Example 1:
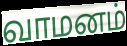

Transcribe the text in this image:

வாமனம்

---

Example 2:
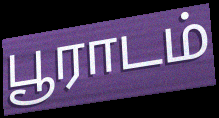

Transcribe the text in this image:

பூராடம்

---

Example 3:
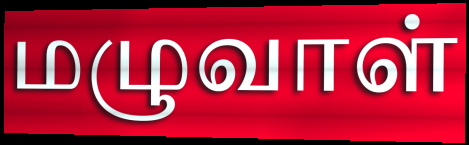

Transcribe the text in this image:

மழுவாள்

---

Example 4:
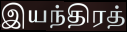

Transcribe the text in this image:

இயந்திரத்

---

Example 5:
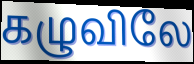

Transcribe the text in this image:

கழுவிலே